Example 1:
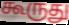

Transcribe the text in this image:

கூருது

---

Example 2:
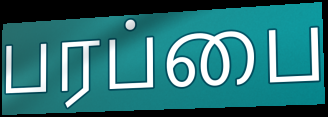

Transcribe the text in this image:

பரப்பை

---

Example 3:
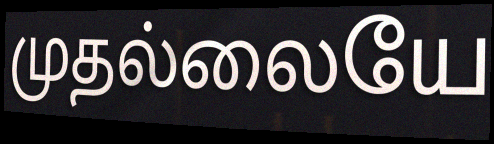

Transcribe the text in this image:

முதல்லையே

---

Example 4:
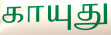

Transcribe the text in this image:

காயுது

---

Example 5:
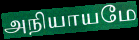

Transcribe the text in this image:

அநியாயமே